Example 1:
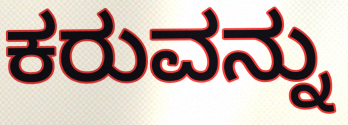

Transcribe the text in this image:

ಕರುವನ್ನು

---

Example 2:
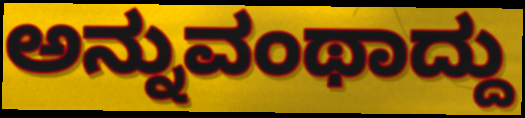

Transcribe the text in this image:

ಅನ್ನುವಂಥಾದ್ದು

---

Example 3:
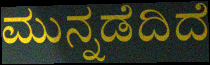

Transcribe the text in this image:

ಮುನ್ನಡೆದಿದೆ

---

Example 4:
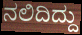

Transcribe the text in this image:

ನಲಿದಿದ್ದು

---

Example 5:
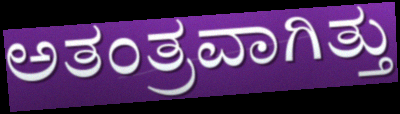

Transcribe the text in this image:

ಅತಂತ್ರವಾಗಿತ್ತು